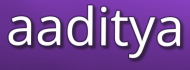
aaditya